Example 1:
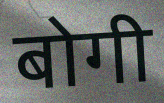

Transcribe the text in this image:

बोगी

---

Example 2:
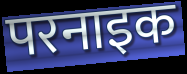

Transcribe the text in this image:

परनाइक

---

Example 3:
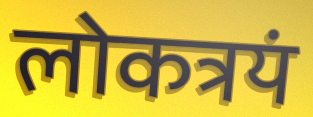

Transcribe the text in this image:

लोकत्रयं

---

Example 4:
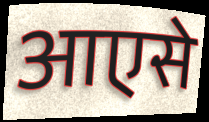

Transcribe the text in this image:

आएसे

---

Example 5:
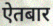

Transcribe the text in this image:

ऐतबार